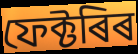
ফেক্টৰিৰ